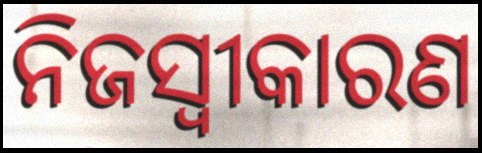
ନିଜସ୍ବୀକାରଣ